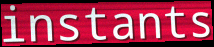
instants